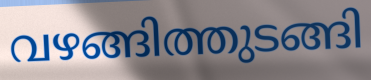
വഴങ്ങിത്തുടങ്ങി